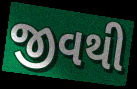
જીવથી